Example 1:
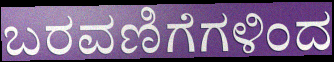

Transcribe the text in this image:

ಬರವಣಿಗೆಗಳಿಂದ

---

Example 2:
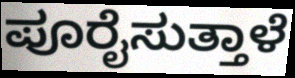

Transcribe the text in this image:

ಪೂರೈಸುತ್ತಾಳೆ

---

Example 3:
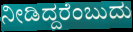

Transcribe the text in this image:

ನೀಡಿದ್ದರೆಂಬುದು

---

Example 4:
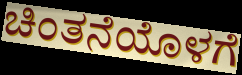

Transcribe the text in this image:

ಚಿಂತನೆಯೊಳಗೆ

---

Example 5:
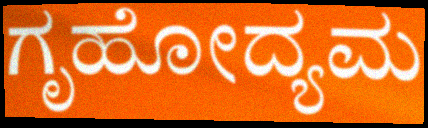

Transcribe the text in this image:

ಗೃಹೋದ್ಯಮ